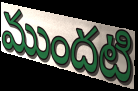
ముందటి